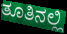
ತೂತಿನಲ್ಲಿ